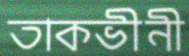
তাকভীনী